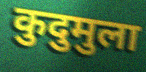
कुदुमुला